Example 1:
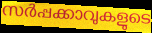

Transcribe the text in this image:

സർപ്പക്കാവുകളുടെ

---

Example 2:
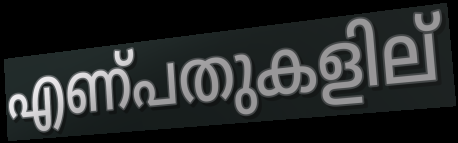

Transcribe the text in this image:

എണ്പതുകളില്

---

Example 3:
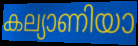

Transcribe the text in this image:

കല്യാണിയാ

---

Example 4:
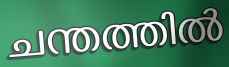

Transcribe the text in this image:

ചന്തത്തിൽ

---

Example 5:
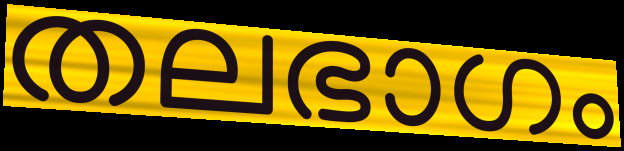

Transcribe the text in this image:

തലഭാഗം